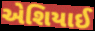
એશિયાઈ